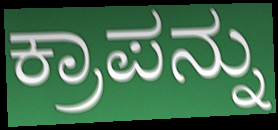
ಕ್ರಾಪನ್ನು